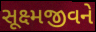
સૂક્ષ્મજીવને